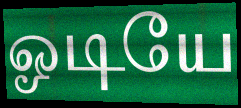
ஓடியே